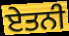
ਏਤਨੀ